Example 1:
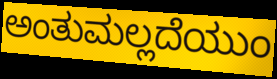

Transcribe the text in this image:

ಅಂತುಮಲ್ಲದೆಯುಂ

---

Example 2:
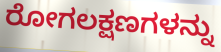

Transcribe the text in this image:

ರೋಗಲಕ್ಷಣಗಳನ್ನು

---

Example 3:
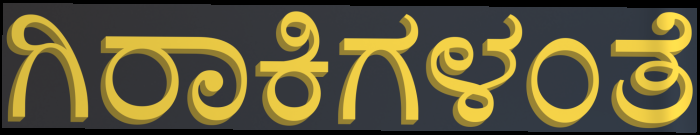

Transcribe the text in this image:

ಗಿರಾಕಿಗಳಂತೆ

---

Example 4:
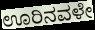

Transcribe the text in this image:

ಊರಿನವಳೇ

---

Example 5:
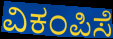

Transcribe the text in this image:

ವಿಕಂಪಿಸೆ